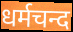
धर्मचन्द